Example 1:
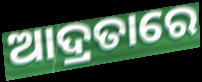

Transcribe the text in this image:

ଆଦ୍ରତାରେ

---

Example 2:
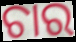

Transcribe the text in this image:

ଚାର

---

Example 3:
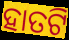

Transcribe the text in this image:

ହାତଟି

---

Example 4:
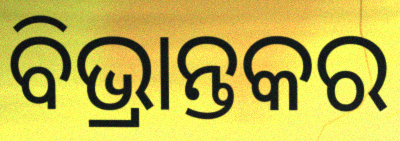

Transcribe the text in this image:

ବିଭ୍ରାନ୍ତକର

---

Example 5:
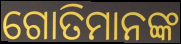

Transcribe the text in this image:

ଗୋତିମାନଙ୍କ